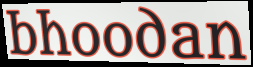
bhoodan